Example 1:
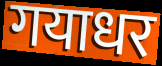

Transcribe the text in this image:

गयाधर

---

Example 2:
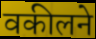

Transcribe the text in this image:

वकीलने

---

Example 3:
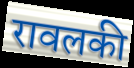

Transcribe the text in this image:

रावलकी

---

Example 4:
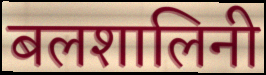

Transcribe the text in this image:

बलशालिनी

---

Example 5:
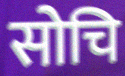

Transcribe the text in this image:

सोचि